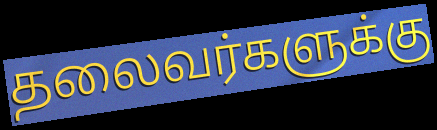
தலைவர்களுக்கு